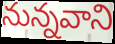
నున్నవాని